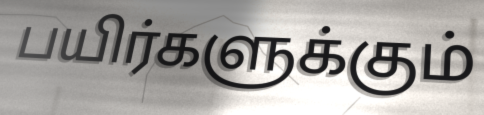
பயிர்களுக்கும்